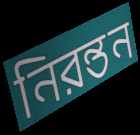
নিরন্তন